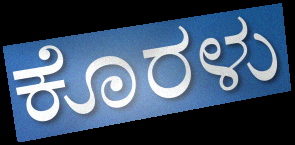
ಕೊರಳು